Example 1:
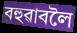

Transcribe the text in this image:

বহুৱাবলৈ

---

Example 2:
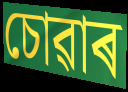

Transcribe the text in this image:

চোৱাৰ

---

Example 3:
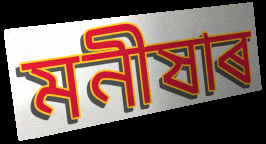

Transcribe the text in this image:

মনীষাৰ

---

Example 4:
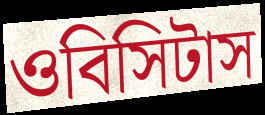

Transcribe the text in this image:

ওবিসিটাস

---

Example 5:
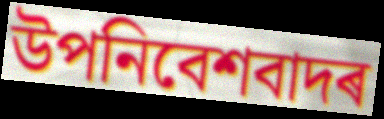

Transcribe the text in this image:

উপনিবেশবাদৰ